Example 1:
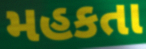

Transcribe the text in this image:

મહકતા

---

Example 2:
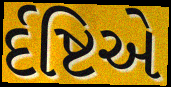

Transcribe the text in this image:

ર્દષ્ટિએ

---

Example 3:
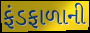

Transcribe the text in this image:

ફંડફાળાની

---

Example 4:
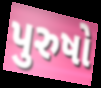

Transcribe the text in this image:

પુરુષો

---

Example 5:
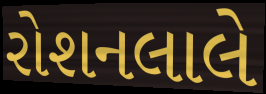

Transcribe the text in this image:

રોશનલાલે